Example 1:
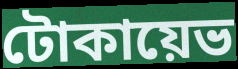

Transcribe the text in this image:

টোকায়েভ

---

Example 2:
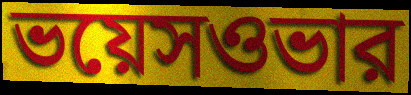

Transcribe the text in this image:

ভয়েসওভার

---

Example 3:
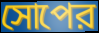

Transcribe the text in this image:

সোপের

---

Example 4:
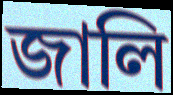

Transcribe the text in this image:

জালি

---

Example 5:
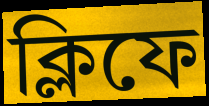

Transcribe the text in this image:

ক্লিফে